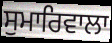
ਸੁਮਾਰਿਵਾਲਾ